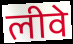
लीवे